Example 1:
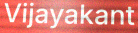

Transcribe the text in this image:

Vijayakant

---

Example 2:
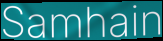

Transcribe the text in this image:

Samhain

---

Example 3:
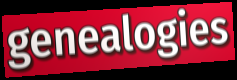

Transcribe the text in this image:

genealogies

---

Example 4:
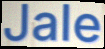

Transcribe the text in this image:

Jale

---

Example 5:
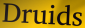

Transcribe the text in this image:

Druids